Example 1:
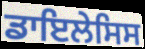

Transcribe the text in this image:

ਡਾਇਲੇਸਿਸ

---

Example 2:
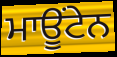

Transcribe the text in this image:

ਮਾਊਂਟੇਨ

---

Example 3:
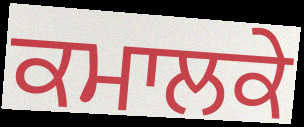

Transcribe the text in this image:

ਕਮਾਲਕੇ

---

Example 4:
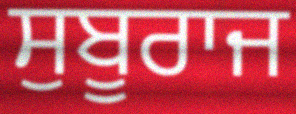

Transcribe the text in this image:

ਸੁਬੂਰਾਜ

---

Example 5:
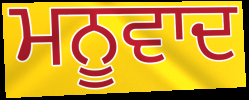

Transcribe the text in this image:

ਮਨੂਵਾਦ